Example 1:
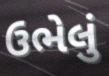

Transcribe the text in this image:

ઉભેલું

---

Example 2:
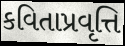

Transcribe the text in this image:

કવિતાપ્રવૃત્તિ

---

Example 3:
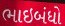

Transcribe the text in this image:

ભાઇબંધો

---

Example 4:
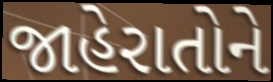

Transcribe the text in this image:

જાહેરાતોને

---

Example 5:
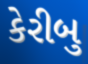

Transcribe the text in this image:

કેરીબુ